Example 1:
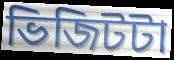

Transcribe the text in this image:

ভিজিটটা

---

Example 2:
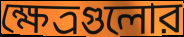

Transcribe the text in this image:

ক্ষেত্রগুলোর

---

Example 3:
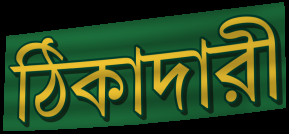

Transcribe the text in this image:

ঠিকাদারী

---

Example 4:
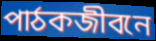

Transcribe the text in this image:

পাঠকজীবনে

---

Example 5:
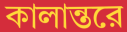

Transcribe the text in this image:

কালান্তরে